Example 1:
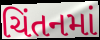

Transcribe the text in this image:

ચિંતનમાં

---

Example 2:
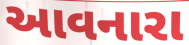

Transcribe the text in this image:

આવનારા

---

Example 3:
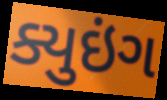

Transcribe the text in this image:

ક્યુઇંગ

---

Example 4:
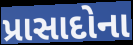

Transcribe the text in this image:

પ્રાસાદોના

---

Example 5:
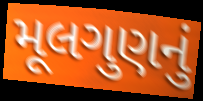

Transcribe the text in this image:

મૂલગુણનું